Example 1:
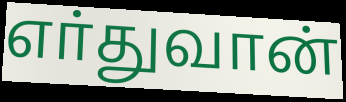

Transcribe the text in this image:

எர்துவான்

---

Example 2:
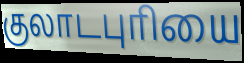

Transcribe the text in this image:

குலாடபுரியை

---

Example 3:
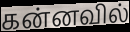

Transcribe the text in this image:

கன்னவில்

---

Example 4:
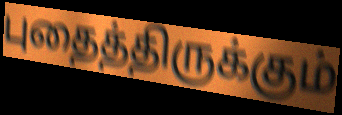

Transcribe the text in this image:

புதைத்திருக்கும்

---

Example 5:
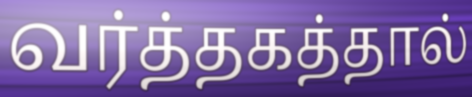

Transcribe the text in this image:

வர்த்தகத்தால்